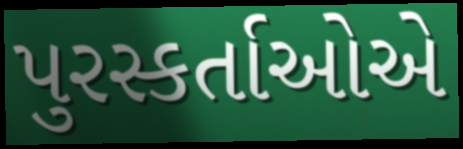
પુરસ્કર્તાઓએ